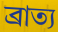
ব্রাত্য